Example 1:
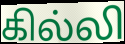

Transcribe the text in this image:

கில்லி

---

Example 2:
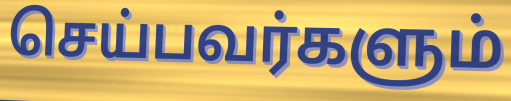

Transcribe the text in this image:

செய்பவர்களும்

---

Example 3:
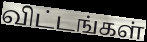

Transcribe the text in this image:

விட்டங்கள்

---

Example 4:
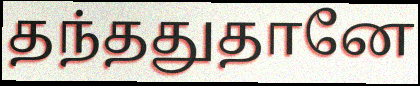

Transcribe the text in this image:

தந்ததுதானே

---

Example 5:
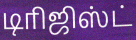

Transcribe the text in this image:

டிரிஜிஸ்ட்